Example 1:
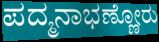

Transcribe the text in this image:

ಪದ್ಮನಾಭಣ್ಣೋರು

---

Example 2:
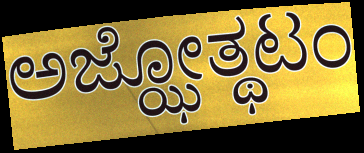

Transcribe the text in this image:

ಅಜ್ಝೋತ್ಥಟಂ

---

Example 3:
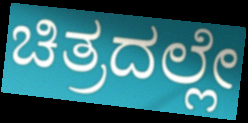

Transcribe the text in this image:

ಚಿತ್ರದಲ್ಲೇ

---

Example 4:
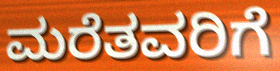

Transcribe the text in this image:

ಮರೆತವರಿಗೆ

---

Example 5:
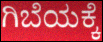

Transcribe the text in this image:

ಗಿಬೆಯಕ್ಕೆ